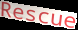
Rescue